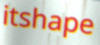
itshape